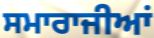
ਸਮਾਰਾਜੀਆਂ